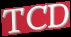
TCD